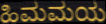
ಹಿಮಮಯ